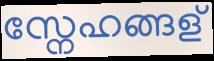
സ്നേഹങ്ങള്